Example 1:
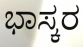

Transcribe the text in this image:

ಭಾಸ್ಕರ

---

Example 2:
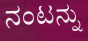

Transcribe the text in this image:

ನಂಟನ್ನು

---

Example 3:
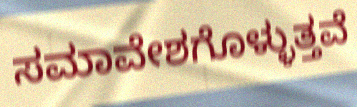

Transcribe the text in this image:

ಸಮಾವೇಶಗೊಳ್ಳುತ್ತವೆ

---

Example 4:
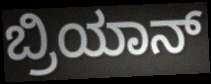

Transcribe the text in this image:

ಬ್ರಿಯಾನ್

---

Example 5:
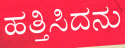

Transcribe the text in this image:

ಹತ್ತಿಸಿದನು